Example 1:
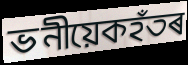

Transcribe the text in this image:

ভনীয়েকহঁতৰ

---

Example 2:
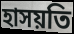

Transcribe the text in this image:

হাসয়তি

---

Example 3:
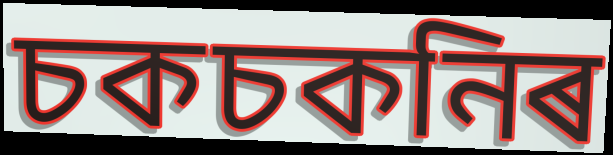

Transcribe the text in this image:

চকচকনিৰ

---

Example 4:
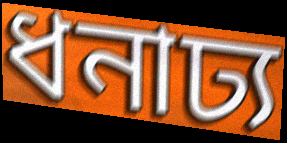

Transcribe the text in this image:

ধনাঢ্য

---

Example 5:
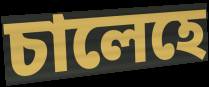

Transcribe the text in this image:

চালেহে